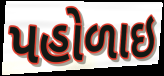
પહોળાઇ